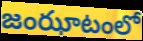
జంఝాటంలో